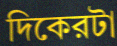
দিকেরটা